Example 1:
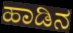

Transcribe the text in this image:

ಹಾಡಿನ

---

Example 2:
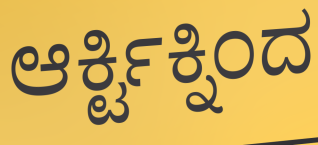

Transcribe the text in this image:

ಆರ್ಕ್ಟಿಕ್ನಿಂದ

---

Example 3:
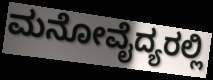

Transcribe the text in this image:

ಮನೋವೈದ್ಯರಲ್ಲಿ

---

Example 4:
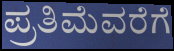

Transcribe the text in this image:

ಪ್ರತಿಮೆವರೆಗೆ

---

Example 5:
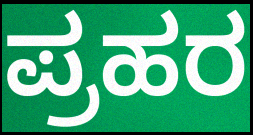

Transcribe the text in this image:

ಪ್ರಹರ